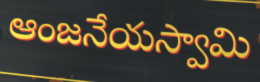
ఆంజనేయస్వామి